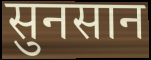
सुनसान